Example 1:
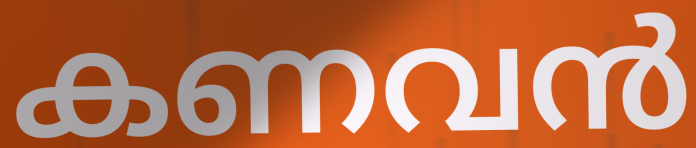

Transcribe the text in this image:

കണവൻ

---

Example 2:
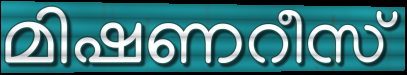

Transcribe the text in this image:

മിഷണറീസ്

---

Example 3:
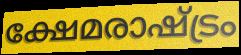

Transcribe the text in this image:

ക്ഷേമരാഷ്ട്രം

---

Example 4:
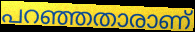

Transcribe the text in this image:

പറഞ്ഞതാരാണ്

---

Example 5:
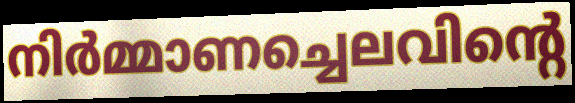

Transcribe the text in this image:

നിർമ്മാണച്ചെലവിന്റെ